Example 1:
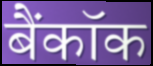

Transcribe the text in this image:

बैंकॉक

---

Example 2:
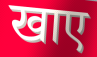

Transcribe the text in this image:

खाए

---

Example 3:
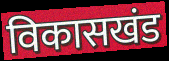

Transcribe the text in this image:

विकासखंड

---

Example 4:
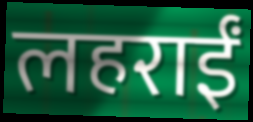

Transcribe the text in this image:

लहराईं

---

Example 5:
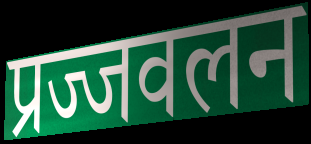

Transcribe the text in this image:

प्रज्जवलन